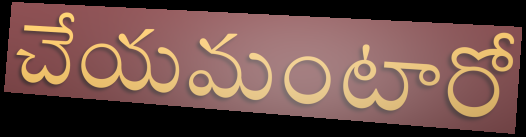
చేయమంటారో